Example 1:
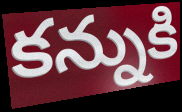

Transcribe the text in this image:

కన్నుకి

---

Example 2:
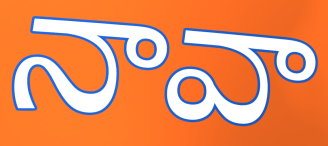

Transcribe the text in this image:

నావా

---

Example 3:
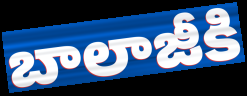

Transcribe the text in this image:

బాలాజీకి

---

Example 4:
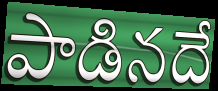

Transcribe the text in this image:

పాడినదే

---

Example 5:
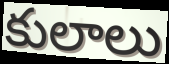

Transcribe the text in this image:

కులాలు